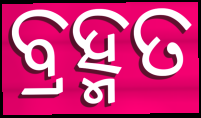
ବ୍ରହ୍ମତ